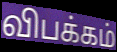
விபக்கம்